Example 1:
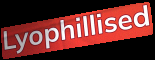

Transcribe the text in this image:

Lyophillised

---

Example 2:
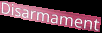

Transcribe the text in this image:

Disarmament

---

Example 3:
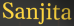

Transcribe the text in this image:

Sanjita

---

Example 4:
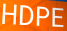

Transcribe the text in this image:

HDPE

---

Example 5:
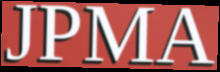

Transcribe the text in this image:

JPMA